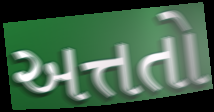
અત્તતો